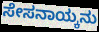
ಸೇಸನಾಯ್ಕನು